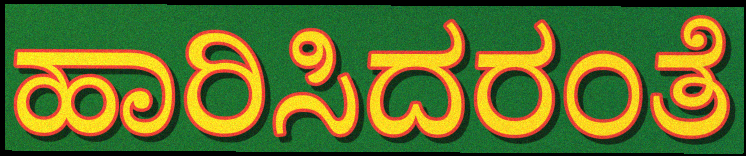
ಹಾರಿಸಿದರಂತೆ